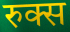
रुक्स